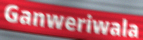
Ganweriwala